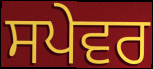
ਸਪੇਵਰ